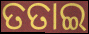
ତତାଇ